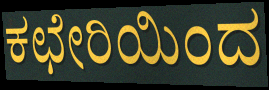
ಕಛೇರಿಯಿಂದ